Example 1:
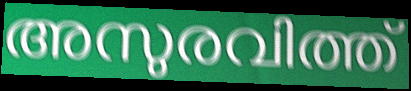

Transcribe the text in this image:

അസുരവിത്ത്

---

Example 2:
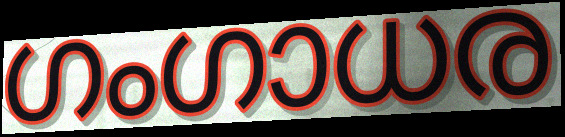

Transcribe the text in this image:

ഗംഗാധര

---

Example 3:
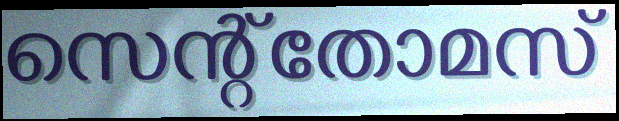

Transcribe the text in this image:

സെന്റ്തോമസ്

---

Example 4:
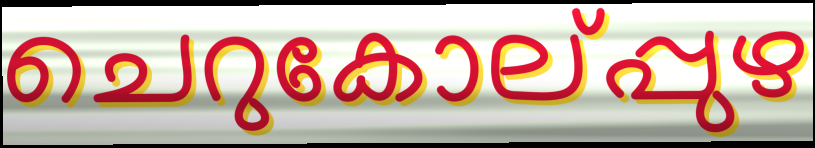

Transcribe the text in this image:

ചെറുകോല്പ്പുഴ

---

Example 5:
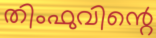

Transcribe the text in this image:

തിംഫുവിന്റെ